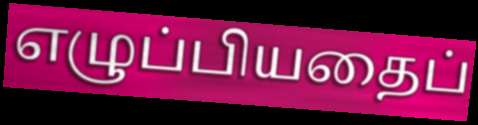
எழுப்பியதைப்